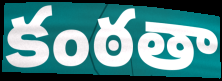
కంఠతా